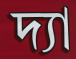
দ্যা